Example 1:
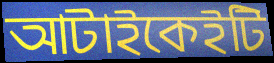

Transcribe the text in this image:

আটাইকেইটি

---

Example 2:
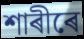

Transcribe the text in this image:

শাৰীৰে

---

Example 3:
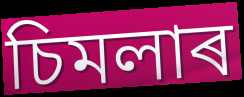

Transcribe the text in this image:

চিমলাৰ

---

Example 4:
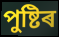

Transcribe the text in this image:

পুষ্টিৰ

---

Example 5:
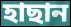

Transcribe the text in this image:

হাছান